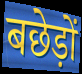
बछेड़ों